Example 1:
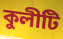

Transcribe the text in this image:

কুলীটি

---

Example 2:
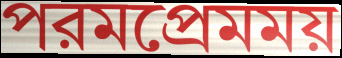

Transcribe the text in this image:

পরমপ্রেমময়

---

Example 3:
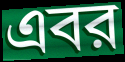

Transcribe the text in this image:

এবর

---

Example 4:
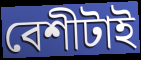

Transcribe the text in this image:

বেশীটাই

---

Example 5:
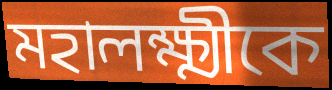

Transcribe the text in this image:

মহালক্ষ্মীকে